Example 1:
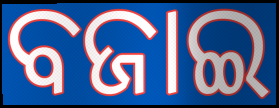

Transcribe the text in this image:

ବଜାଇ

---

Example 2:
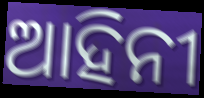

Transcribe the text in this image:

ଆହିନୀ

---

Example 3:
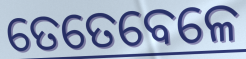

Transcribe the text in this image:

ତେତେବେଳେ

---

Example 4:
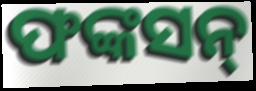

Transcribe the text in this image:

ଫଙ୍କସନ୍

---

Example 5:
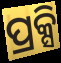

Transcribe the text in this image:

ପ୍ରକ୍ସି